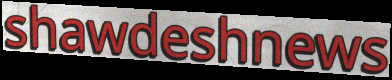
shawdeshnews